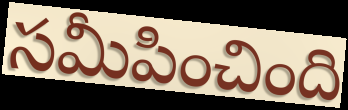
సమీపించింది